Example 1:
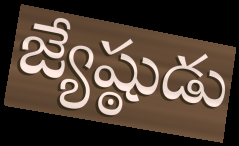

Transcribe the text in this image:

జ్యేష్ఠుడు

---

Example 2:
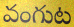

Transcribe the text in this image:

వంగుట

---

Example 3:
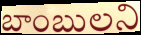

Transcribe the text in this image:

బాంబులని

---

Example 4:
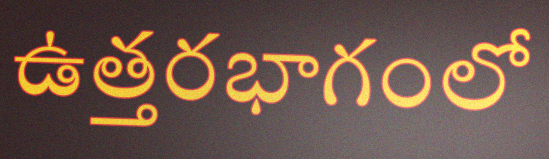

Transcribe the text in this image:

ఉత్తరభాగంలో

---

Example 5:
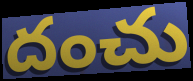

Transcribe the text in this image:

దంచు